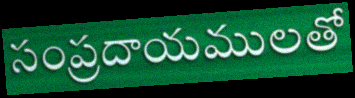
సంప్రదాయములతో